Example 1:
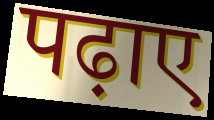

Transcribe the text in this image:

पढ़ाए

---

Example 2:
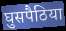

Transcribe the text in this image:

घुसपैठिया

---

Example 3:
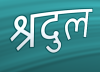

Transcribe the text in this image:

श्रदुल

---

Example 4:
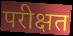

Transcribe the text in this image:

परीक्षत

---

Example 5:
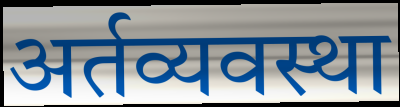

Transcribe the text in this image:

अर्तव्यवस्था